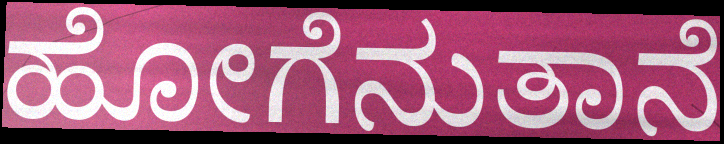
ಹೋಗೆನುತಾನೆ